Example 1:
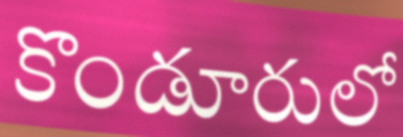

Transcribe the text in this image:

కొండూరులో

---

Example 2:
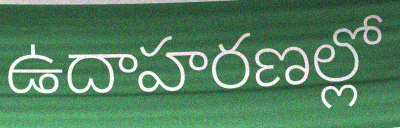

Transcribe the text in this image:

ఉదాహరణల్లో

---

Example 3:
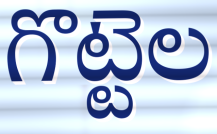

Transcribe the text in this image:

గొట్టెల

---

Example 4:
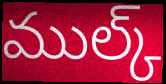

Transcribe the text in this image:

ముల్క్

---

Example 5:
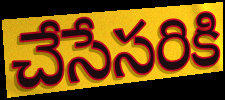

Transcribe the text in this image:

చేసేసరికి